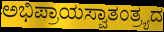
ಅಭಿಪ್ರಾಯಸ್ವಾತಂತ್ರ್ಯದ